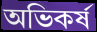
অভিকর্ষ